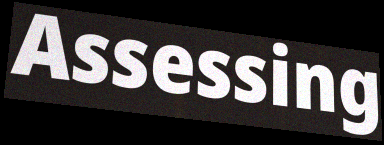
Assessing